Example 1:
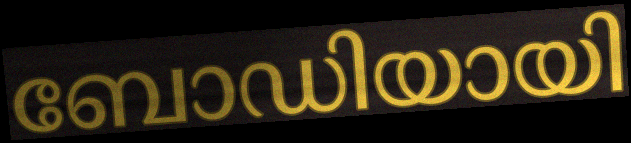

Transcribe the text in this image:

ബോഡിയായി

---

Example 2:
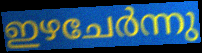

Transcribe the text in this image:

ഇഴചേർന്നു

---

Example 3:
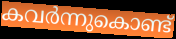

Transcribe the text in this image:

കവർന്നുകൊണ്ട്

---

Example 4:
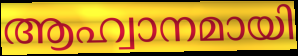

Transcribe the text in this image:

ആഹ്വാനമായി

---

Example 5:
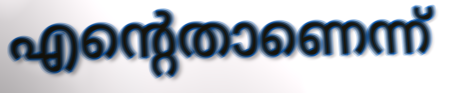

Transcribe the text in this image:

എന്റെതാണെന്ന്